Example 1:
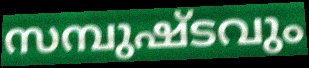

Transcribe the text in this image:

സമ്പുഷ്ടവും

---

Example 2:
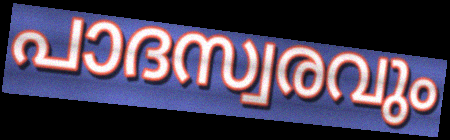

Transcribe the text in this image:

പാദസ്വരവും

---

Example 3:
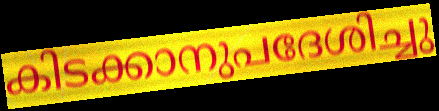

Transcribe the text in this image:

കിടക്കാനുപദേശിച്ചു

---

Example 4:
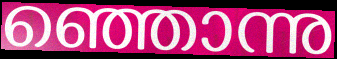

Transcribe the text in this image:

ഞ്ഞൊന്നു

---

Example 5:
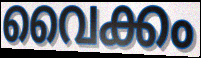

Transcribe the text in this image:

വൈക്കം